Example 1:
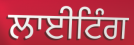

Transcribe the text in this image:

ਲਾਈਟਿੰਗ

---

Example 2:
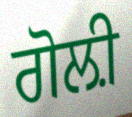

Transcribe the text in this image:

ਗੋਲ਼ੀ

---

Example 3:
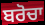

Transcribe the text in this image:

ਬਰੋਚਾ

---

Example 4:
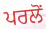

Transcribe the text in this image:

ਪਰਲੋਂ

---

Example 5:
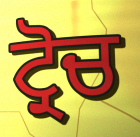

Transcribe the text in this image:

ਟ੍ਰੋਚ